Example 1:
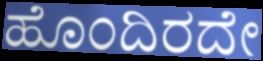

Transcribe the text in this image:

ಹೊಂದಿರದೇ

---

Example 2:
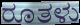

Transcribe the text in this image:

ರೂತಳು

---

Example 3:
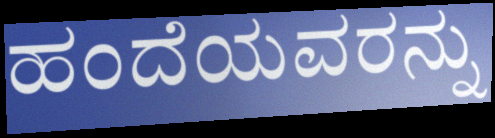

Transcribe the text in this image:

ಹಂದೆಯವರನ್ನು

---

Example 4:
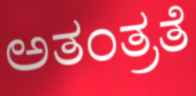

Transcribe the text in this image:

ಅತಂತ್ರತೆ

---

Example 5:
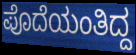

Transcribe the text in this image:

ಪೊದೆಯಂತಿದ್ದ